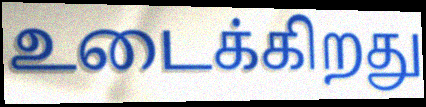
உடைக்கிறது